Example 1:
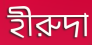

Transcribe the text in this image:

হীরুদা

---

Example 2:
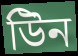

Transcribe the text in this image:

উিন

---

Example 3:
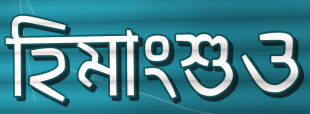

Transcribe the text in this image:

হিমাংশুও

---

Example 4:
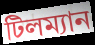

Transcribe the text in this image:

টিলম্যান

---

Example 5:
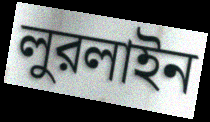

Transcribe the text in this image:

লুরলাইন